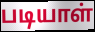
படியாள்